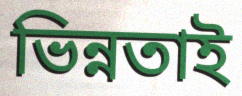
ভিন্নতাই